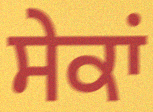
ਸੇਕਾਂ